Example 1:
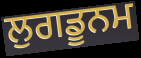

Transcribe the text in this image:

ਲੁਗਡੂਨਮ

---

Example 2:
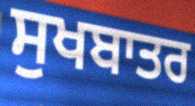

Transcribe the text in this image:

ਸੁਖਬਾਤਰ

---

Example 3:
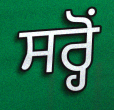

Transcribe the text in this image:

ਸਰ੍ਹੋਂ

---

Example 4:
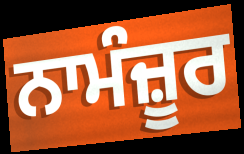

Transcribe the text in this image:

ਨਾਮੰਜ਼ੂਰ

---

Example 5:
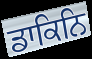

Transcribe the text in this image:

ਡਾਕਿਨਿ